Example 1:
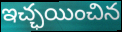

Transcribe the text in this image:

ఇచ్ఛయించిన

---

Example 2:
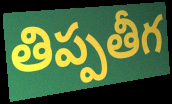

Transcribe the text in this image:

తిప్పతీగ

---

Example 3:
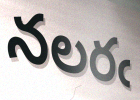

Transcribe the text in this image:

నలరఁ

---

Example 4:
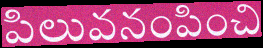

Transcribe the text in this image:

పిలువనంపించి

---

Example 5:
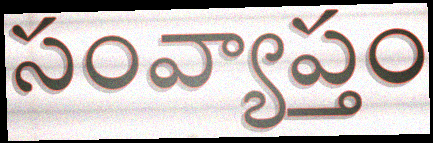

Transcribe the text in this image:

సంవ్యాప్తం